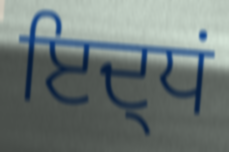
ਇਦ੍ਧਂ